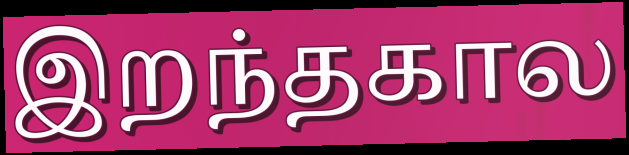
இறந்தகால